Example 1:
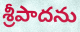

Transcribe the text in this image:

శ్రీపాదను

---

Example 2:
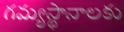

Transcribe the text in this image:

గమ్యస్థానాలకు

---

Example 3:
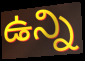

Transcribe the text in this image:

ఉన్ని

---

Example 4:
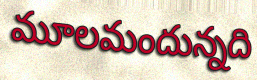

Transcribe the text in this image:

మూలమందున్నది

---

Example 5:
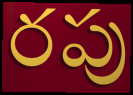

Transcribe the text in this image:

రపు